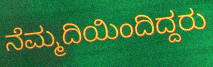
ನೆಮ್ಮದಿಯಿಂದಿದ್ದರು